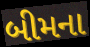
બીમના